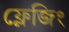
ফ্লেজিং